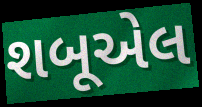
શબૂએલ